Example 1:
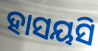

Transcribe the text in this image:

ହାସୟସି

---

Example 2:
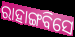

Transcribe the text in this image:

ରାହାଙ୍ଗବିସେ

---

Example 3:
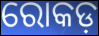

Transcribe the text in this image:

ରୋକଡ଼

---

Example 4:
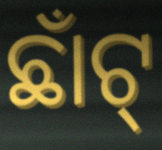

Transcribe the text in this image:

ଛାଁଟ୍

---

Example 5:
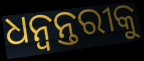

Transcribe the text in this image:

ଧନ୍ବନ୍ତରୀକୁ